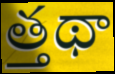
త్తథా